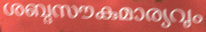
ശബ്ദസൗകുമാര്യവും